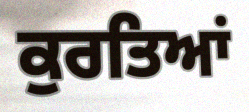
ਕੁਰਤਿਆਂ